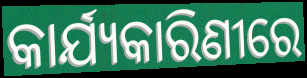
କାର୍ଯ୍ୟକାରିଣୀରେ